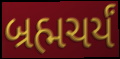
બ્રહ્મચર્યં